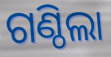
ଗଣ୍ଠିଲା